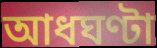
আধঘণ্টা